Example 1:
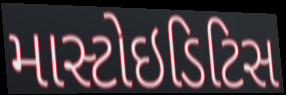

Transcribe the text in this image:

માસ્ટોઇડિટિસ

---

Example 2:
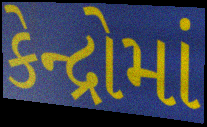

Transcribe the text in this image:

કેન્દ્રોમાં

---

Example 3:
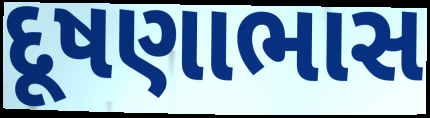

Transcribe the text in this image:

દૂષણાભાસ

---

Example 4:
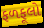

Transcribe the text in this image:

ફળફૂલો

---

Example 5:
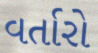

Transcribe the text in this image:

વર્તારો